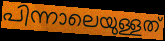
പിന്നാലെയുള്ളത്